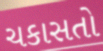
ચકાસતો